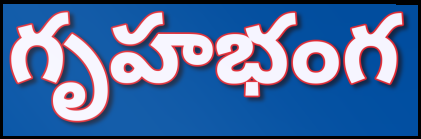
గృహభంగ